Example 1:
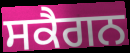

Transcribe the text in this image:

ਸਕੈਗਨ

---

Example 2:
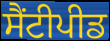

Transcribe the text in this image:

ਸੈਂਟੀਪੀਡ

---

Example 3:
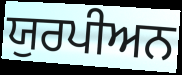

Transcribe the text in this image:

ਯੁਰਪੀਅਨ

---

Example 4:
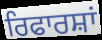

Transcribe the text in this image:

ਰਿਫਾਰਸ਼ਾਂ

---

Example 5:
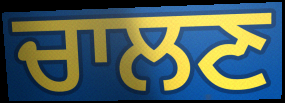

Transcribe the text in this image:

ਚਾਲਣ